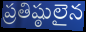
ప్రతిష్ఠులైన